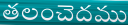
తలంచెదము